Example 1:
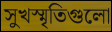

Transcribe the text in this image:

সুখস্মৃতিগুলো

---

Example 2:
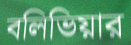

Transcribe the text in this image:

বলিভিয়ার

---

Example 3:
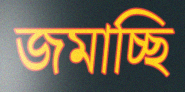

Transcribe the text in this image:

জমাচ্ছি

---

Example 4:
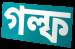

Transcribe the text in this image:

গল্ফ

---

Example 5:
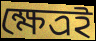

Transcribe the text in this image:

ক্ষেত্রই